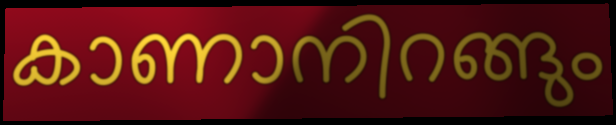
കാണാനിറങ്ങും